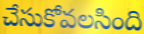
చేసుకోవలసింది